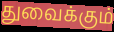
துவைக்கும்